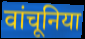
वांचूनिया